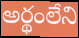
అర్థంలేని